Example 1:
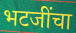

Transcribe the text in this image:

भटजींचा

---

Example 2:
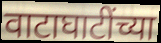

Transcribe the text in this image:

वाटाघाटींच्या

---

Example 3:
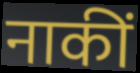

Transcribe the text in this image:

नाकीं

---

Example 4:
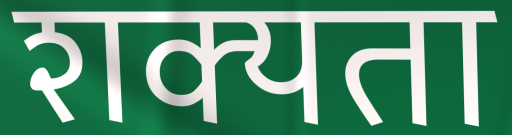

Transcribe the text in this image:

शक्यता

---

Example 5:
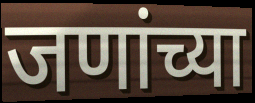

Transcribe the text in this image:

जणांच्या